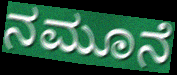
ನಮೂನೆ